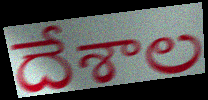
దేశాల